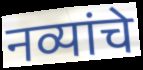
नव्यांचे